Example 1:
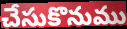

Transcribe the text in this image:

చేసుకొనుము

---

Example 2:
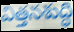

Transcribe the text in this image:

విత్తనశుద్ధి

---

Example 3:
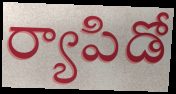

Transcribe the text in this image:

ర్యాపిడో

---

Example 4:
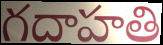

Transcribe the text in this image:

గదాహతి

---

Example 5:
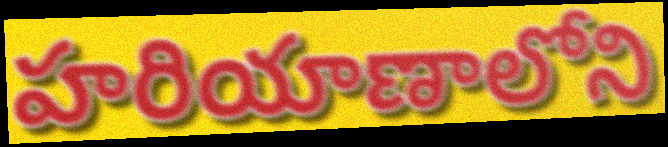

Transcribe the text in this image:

హరియాణాలోని